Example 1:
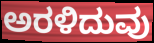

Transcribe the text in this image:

ಅರಳಿದುವು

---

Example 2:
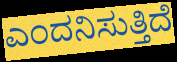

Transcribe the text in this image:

ಎಂದನಿಸುತ್ತಿದೆ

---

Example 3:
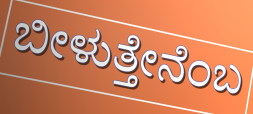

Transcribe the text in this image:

ಬೀಳುತ್ತೇನೆಂಬ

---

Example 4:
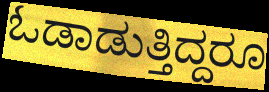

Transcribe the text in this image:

ಓಡಾಡುತ್ತಿದ್ದರೂ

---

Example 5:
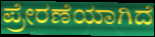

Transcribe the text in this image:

ಪ್ರೇರಣೆಯಾಗಿದೆ